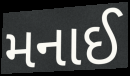
મનાઈ